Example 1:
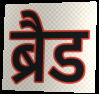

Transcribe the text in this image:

ब्रैड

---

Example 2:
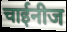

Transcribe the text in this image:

चाईनीज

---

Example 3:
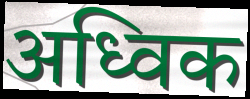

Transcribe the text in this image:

अध्विक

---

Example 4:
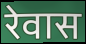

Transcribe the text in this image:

रेवास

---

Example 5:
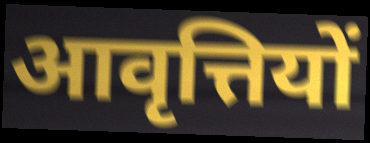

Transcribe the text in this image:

आवृत्तियों